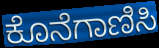
ಕೊನೆಗಾಣಿಸಿ